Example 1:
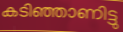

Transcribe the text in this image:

കടിഞ്ഞാണിട്ടു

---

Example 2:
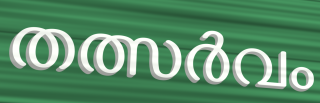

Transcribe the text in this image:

തത്സർവം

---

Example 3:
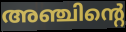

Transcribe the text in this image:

അഞ്ചിന്റെ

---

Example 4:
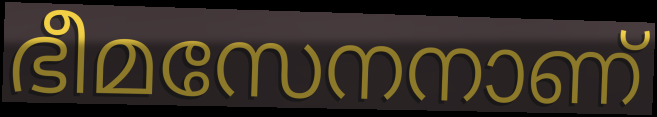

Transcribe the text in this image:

ഭീമസേനനാണ്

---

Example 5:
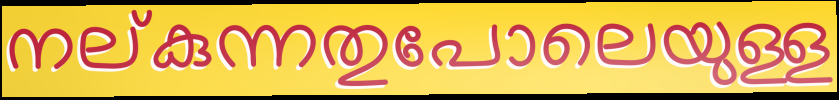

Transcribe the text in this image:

നല്കുന്നതുപോലെയുള്ള